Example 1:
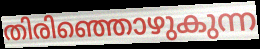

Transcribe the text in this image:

തിരിഞ്ഞൊഴുകുന്ന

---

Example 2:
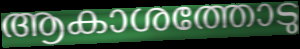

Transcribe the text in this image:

ആകാശത്തോടു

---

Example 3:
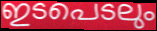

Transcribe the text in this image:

ഇടപെടലും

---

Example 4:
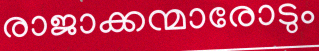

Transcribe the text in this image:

രാജാക്കന്മാരോടും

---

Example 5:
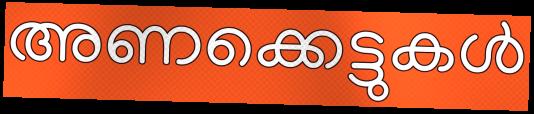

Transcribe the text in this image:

അണക്കെട്ടുകൾ